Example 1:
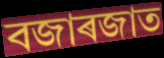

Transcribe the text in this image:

বজাৰজাত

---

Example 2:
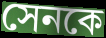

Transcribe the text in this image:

সেনকে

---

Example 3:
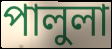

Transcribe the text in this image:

পালুলা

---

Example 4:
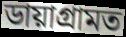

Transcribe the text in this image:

ডায়াগ্ৰামত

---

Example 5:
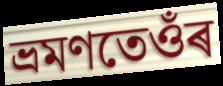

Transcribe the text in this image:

ভ্ৰমণতেওঁৰ